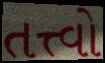
તત્ત્વો